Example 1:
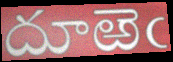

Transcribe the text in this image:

దూఱెఁ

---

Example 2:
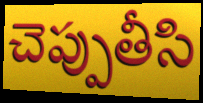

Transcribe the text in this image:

చెప్పుతీసి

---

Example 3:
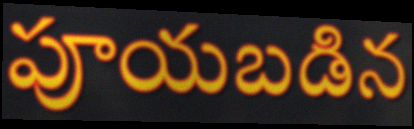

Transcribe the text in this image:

పూయబడిన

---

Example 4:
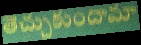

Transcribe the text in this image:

తెచ్చుకుందామా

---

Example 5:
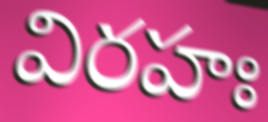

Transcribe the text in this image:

విరహః